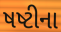
ષષ્ટીના